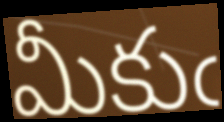
మీకుఁ